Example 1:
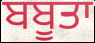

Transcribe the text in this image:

ਬਬੂਤਾ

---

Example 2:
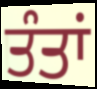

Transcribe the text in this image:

ਤੰਤਾਂ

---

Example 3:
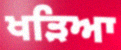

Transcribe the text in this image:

ਖੜਿਆ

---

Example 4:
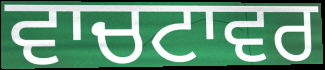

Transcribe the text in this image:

ਵਾਚਟਾਵਰ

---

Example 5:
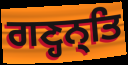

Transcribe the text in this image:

ਗਣ੍ਹਨ੍ਤਿ